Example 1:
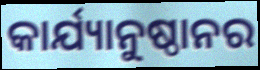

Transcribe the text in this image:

କାର୍ଯ୍ୟାନୁଷ୍ଠାନର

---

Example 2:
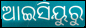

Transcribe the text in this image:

ଆଇସିୟୁରୁ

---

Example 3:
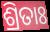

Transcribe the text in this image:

ଶ୍ରିତାଃ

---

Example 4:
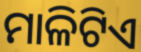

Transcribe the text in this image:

ମାଳିଟିଏ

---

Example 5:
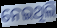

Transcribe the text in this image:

ନେଇଥିଲି